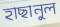
হাছানুল